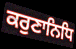
ਕਰੁਣਾਨਿਧਿ